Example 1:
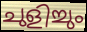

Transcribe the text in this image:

ചുളിച്ചും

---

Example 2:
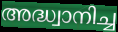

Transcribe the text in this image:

അദ്ധ്വാനിച്ച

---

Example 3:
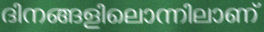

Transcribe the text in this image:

ദിനങ്ങളിലൊന്നിലാണ്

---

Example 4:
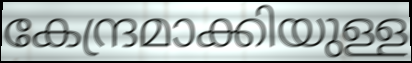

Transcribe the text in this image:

കേന്ദ്രമാക്കിയുള്ള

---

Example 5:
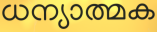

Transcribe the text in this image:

ധന്യാത്മക